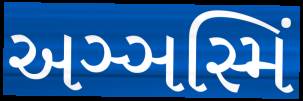
અઞ્ઞસ્મિં